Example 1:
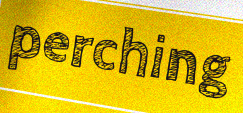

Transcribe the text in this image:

perching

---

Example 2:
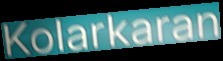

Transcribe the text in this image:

Kolarkaran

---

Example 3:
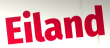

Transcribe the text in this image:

Eiland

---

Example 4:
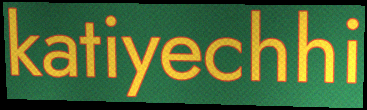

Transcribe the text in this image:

katiyechhi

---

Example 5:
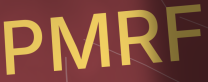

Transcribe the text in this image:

PMRF